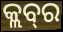
କ୍ଲବ୍‌ର